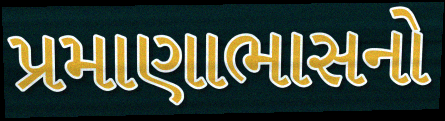
પ્રમાણાભાસનો